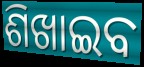
ଶିଖାଇବ